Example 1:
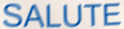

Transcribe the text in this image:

SALUTE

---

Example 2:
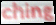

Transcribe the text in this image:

ching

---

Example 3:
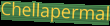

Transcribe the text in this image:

Chellapermal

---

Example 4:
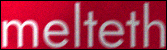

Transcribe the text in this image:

melteth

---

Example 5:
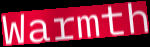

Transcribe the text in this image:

Warmth